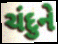
ચંદુને